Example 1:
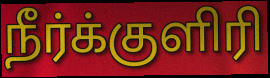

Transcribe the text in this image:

நீர்க்குளிரி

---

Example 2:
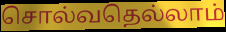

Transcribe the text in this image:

சொல்வதெல்லாம்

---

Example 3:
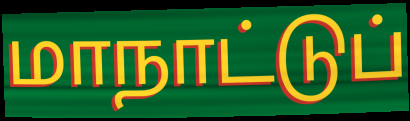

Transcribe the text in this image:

மாநாட்டுப்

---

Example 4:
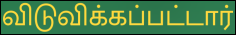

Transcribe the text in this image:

விடுவிக்கப்பட்டார்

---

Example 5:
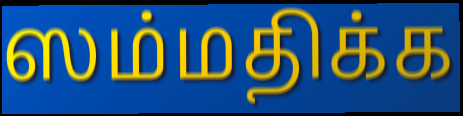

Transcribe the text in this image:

ஸம்மதிக்க